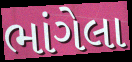
ભાંગેલા